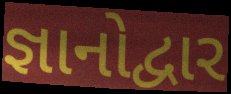
જ્ઞાનોદ્વાર